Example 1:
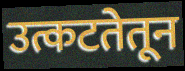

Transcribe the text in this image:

उत्कटतेतून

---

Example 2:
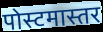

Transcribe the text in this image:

पोस्टमास्तर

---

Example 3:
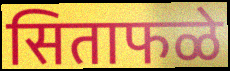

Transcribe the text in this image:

सिताफळे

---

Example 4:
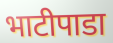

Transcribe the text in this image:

भाटीपाडा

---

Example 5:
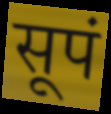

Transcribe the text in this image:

सूपं